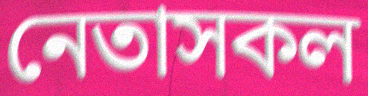
নেতাসকল